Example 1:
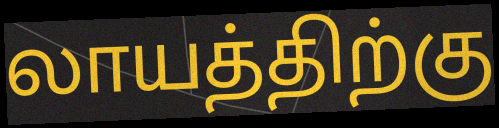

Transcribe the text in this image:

லாயத்திற்கு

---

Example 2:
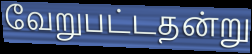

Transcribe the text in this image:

வேறுபட்டதன்று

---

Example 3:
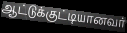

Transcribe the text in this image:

ஆட்டுக்குட்டியானவர்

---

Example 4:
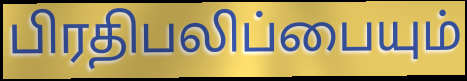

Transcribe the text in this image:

பிரதிபலிப்பையும்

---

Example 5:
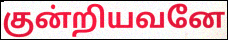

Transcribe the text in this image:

குன்றியவனே